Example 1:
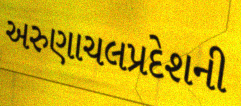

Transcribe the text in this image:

અરુણાચલપ્રદેશની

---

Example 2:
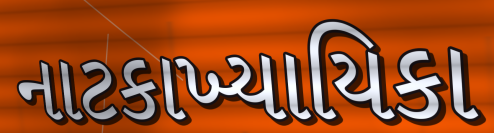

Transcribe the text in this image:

નાટકાખ્યાયિકા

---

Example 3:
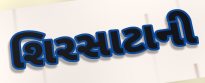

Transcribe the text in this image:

શિરસાટાની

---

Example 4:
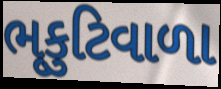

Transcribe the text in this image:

ભૃકુટિવાળા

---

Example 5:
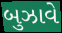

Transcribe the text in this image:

બુઝાવે